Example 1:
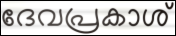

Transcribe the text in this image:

ദേവപ്രകാശ്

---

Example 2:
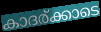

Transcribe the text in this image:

കാദര്ക്കാടെ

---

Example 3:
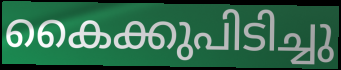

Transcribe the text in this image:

കൈക്കുപിടിച്ചു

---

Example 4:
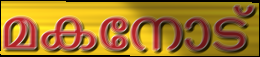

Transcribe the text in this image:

മകനോട്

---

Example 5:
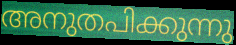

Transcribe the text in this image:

അനുതപിക്കുന്നു